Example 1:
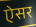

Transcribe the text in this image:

ऐसर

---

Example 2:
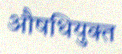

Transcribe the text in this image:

औषधियुक्त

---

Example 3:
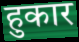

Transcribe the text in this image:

हुकार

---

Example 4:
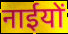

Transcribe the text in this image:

नाईयों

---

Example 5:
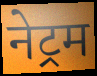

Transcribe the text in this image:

नेट्रम